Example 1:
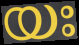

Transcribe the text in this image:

യഃ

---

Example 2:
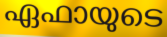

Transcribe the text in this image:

ഏഫായുടെ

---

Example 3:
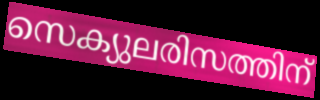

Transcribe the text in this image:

സെക്യുലരിസത്തിന്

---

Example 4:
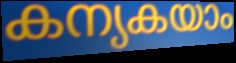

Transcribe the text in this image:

കന്യകയാം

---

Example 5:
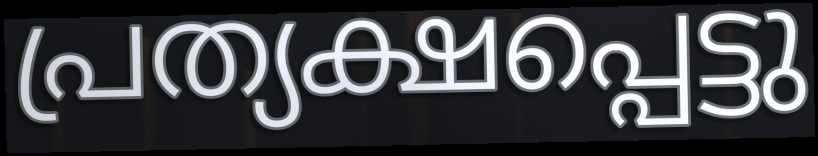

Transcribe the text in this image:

പ്രത്യക്ഷപ്പെട്ടു